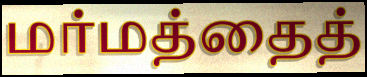
மர்மத்தைத்